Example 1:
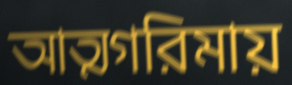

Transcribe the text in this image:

আত্মগরিমায়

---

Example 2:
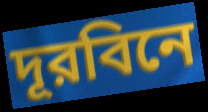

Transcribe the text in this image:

দূরবিনে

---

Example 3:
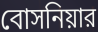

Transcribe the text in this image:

বোসনিয়ার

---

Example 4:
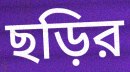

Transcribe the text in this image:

ছড়ির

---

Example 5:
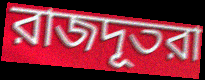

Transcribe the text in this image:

রাজদূতরা